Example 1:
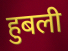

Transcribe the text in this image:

हुबली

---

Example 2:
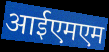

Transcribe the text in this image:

आईएमएम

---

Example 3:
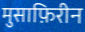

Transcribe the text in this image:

मुसाफ़िरीन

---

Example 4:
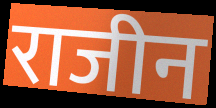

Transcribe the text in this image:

राजीन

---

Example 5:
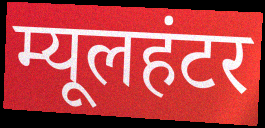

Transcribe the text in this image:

म्यूलहंटर